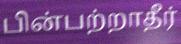
பின்பற்றாதீர்